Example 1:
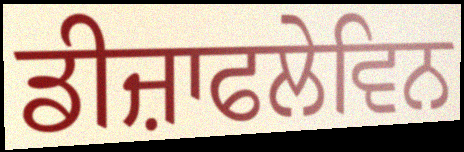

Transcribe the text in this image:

ਡੀਜ਼ਾਫਲੇਵਿਨ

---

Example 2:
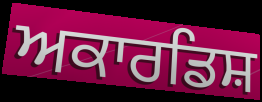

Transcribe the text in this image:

ਅਕਾਰਡਿਸ਼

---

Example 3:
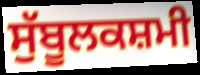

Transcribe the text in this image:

ਸੁੱਬੂਲਕਸ਼ਮੀ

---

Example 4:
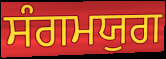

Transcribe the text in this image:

ਸੰਗਮਯੁਗ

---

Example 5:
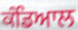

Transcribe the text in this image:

ਕੰਡਿਆਲ